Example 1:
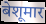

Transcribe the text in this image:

बेशूमार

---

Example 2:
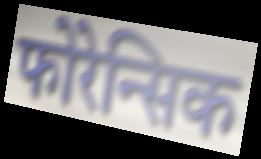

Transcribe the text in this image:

फोरेन्सिक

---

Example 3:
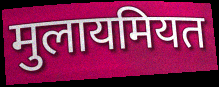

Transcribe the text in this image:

मुलायमियत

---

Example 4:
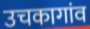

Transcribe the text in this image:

उचकागांव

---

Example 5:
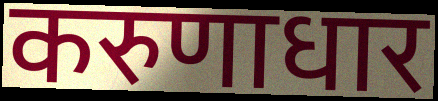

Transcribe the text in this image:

करुणाधार